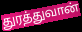
துரத்துவான்